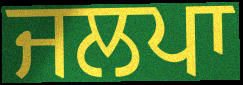
ਜਲਪਾ